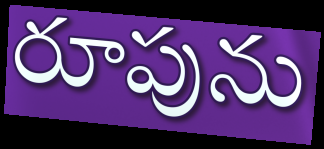
రూపును